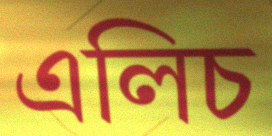
এলিচ